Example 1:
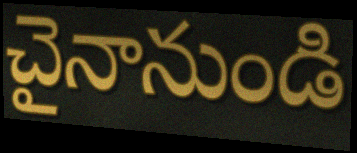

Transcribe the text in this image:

చైనానుండి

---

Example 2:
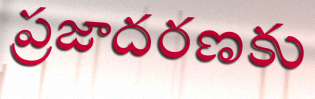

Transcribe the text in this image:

ప్రజాదరణకు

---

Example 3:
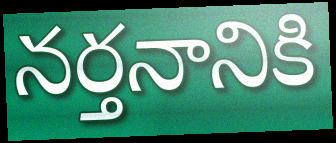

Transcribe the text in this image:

నర్తనానికి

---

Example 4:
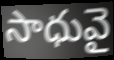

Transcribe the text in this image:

సాధువై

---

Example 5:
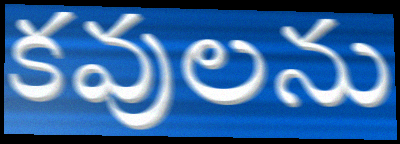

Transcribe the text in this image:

కవులను